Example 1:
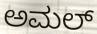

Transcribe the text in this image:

ಅಮಲ್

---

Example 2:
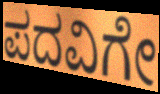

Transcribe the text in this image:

ಪದವಿಗೇ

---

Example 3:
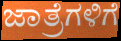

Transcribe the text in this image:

ಜಾತ್ರೆಗಳಿಗೆ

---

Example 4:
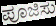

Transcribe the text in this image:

ಪೂಜಿಸು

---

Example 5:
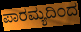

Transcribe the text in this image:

ಪಾರಮ್ಯದಿಂದ